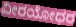
ವೀರಯೋಧರ